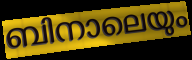
ബിനാലെയും